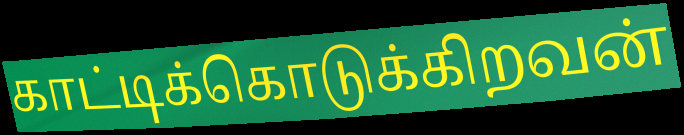
காட்டிக்கொடுக்கிறவன்